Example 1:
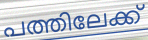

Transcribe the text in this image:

പത്തിലേക്ക്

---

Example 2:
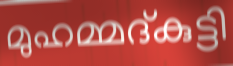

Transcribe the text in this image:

മുഹമ്മദ്കുട്ടി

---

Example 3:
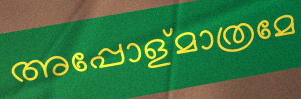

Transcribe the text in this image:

അപ്പോള്മാത്രമേ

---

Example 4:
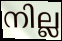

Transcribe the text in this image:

നില്ല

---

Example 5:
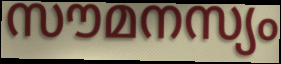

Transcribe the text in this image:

സൗമനസ്യം